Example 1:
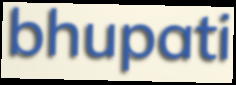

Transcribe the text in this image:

bhupati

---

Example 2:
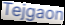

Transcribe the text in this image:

Tejgaon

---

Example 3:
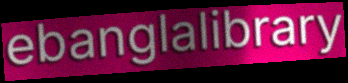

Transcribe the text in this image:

ebanglalibrary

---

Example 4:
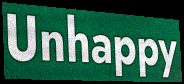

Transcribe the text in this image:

Unhappy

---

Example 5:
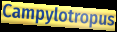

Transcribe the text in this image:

Campylotropus